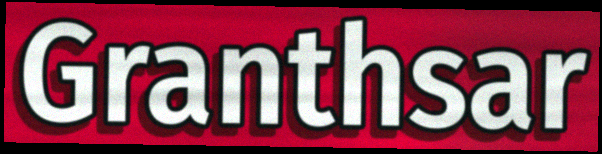
Granthsar